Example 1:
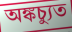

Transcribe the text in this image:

অঙ্কচ্যুত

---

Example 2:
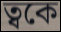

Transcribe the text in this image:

ত্বকে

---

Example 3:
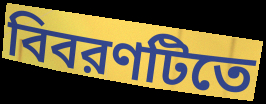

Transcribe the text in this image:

বিবরণটিতে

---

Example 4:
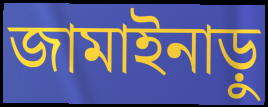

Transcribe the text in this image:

জামাইনাড়ু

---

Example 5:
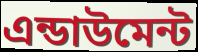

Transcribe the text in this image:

এন্ডাউমেন্ট